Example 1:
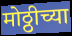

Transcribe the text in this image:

मोठ्ठीच्या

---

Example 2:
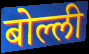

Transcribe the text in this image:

बोल्ली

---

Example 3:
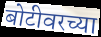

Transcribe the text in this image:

बोटीवरच्या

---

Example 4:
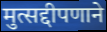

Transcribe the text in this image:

मुत्सद्दीपणाने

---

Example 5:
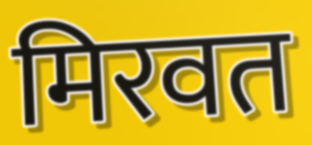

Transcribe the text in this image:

मिरवत